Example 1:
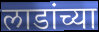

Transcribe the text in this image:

लाडांच्या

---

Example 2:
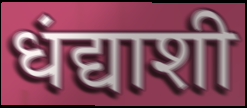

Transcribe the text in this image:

धंद्याशी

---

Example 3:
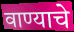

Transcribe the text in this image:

वाण्याचे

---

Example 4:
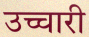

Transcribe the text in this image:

उच्चारी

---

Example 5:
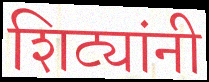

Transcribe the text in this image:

शिट्यांनी